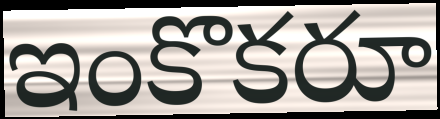
ఇంకొకరూ